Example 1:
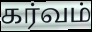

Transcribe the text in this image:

கர்வம்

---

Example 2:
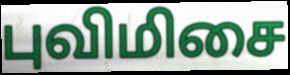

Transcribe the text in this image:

புவிமிசை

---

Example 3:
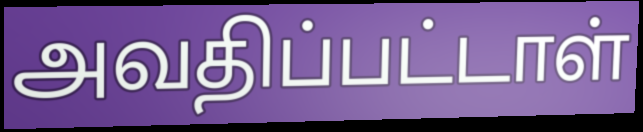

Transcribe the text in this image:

அவதிப்பட்டாள்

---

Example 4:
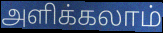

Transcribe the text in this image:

அளிக்கலாம்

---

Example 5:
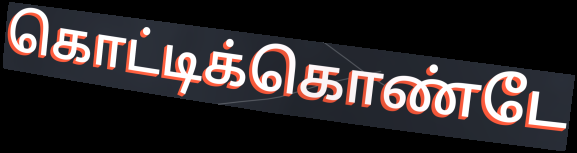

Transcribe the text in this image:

கொட்டிக்கொண்டே